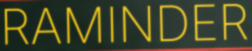
RAMINDER